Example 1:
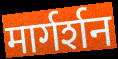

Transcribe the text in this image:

मार्गर्शन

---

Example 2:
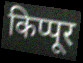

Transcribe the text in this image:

किप्पूर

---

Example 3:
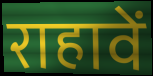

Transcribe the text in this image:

राहावें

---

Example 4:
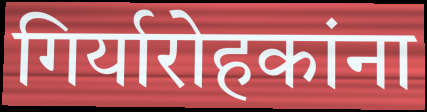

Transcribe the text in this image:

गिर्यारोहकांना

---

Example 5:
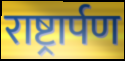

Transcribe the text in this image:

राष्ट्रार्पण